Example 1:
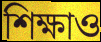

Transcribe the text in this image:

শিক্ষাও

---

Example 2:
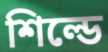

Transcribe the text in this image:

শিল্ডে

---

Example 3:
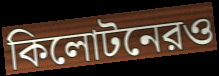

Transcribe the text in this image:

কিলোটনেরও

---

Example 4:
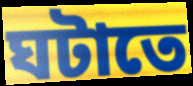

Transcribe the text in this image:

ঘটাতে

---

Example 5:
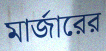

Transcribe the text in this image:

মার্জারের